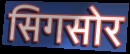
सिगसोर